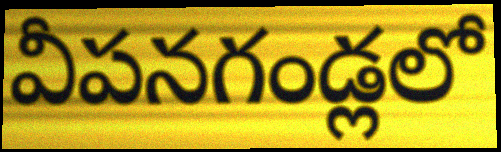
వీపనగండ్లలో